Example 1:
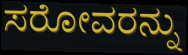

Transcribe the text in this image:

ಸರೋವರನ್ನು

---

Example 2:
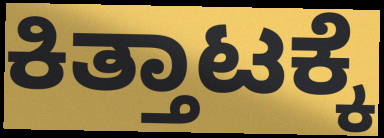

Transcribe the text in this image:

ಕಿತ್ತಾಟಕ್ಕೆ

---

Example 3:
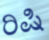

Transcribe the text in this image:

ರಿಷಿ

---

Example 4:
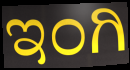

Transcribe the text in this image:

ಇಂಗಿ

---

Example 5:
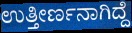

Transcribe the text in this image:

ಉತ್ತೀರ್ಣನಾಗಿದ್ದೆ